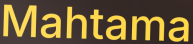
Mahtama